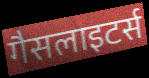
गैसलाइटर्स